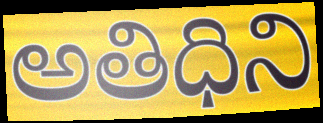
అతిధిని